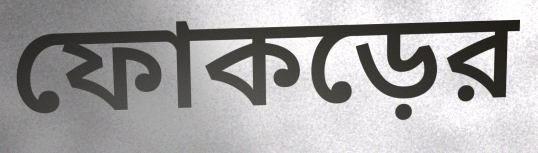
ফোকড়ের